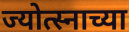
ज्योत्स्नाच्या